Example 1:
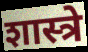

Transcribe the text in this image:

शास्त्रे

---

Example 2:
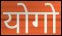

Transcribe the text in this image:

योगो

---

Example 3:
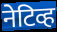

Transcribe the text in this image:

नेटिव्ह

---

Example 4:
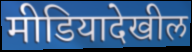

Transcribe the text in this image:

मीडियादेखील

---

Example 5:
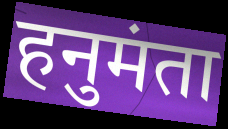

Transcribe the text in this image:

हनुमंता